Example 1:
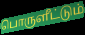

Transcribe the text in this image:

பொருளீட்டும்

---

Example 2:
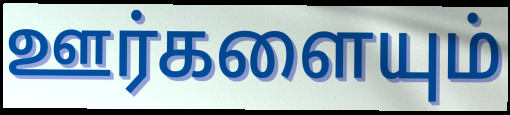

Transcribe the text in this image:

ஊர்களையும்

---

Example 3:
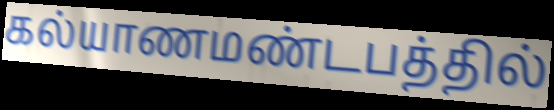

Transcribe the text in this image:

கல்யாணமண்டபத்தில்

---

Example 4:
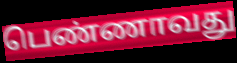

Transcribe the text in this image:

பெண்ணாவது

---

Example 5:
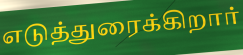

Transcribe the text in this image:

எடுத்துரைக்கிறார்